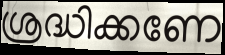
ശ്രദ്ധിക്കണേ